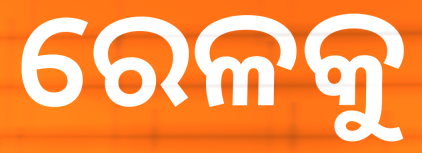
ରେଳକୁ